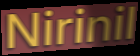
Nirinil